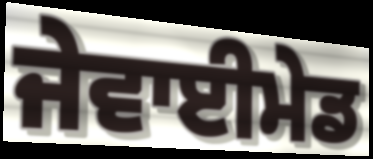
ਜੇਵਾਈਮੇਡ